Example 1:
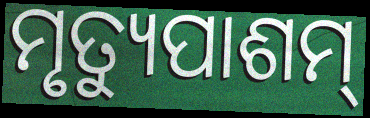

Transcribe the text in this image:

ମୃତ୍ୟୁପାଶମ୍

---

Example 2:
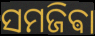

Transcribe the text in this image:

ସମଜିଵା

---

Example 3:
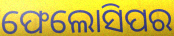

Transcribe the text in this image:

ଫେଲୋସିପର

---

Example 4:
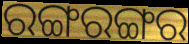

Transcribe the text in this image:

ରଙ୍ଗରଙ୍ଗର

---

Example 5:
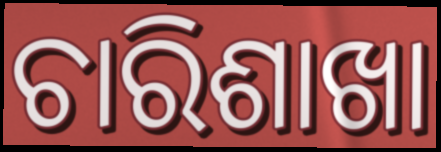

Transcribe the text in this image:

ଚାରିଶାଖା